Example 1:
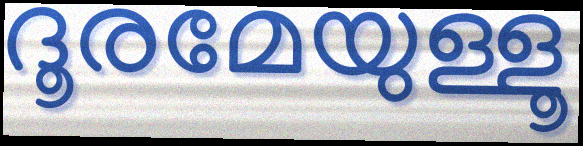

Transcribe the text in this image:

ദൂരമേയുള്ളൂ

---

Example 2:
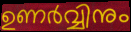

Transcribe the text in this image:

ഉണർവ്വിനും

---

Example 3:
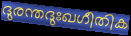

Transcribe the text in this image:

ദുരന്തദുഃഖഗീതിക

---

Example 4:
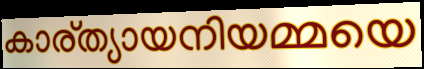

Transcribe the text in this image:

കാര്ത്യായനിയമ്മയെ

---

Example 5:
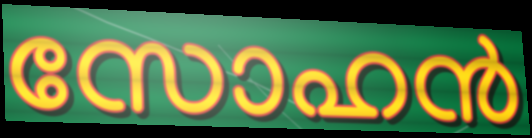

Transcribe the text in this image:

സോഹൻ